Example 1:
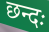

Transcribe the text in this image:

छन्दः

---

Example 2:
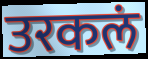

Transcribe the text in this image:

उरकलं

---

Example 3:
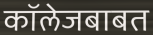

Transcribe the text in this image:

कॉलेजबाबत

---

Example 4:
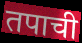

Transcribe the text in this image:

तपाची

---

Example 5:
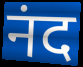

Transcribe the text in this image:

नंद